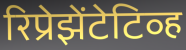
रिप्रेझेंटेटिव्ह